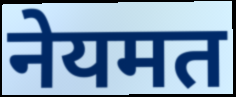
नेयमत